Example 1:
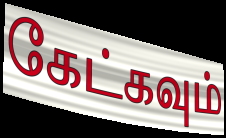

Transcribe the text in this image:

கேட்கவும்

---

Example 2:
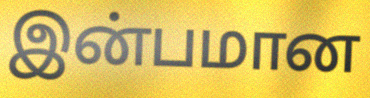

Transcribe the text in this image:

இன்பமான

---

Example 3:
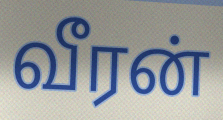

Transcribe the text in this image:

வீரன்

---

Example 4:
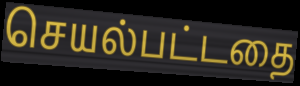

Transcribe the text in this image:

செயல்பட்டதை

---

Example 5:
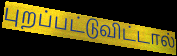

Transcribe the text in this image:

புறப்பட்டுவிட்டால்